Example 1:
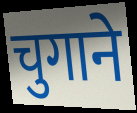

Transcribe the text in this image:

चुगाने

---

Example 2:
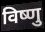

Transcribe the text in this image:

विष्णु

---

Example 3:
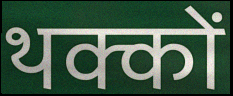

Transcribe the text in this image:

थक्कों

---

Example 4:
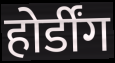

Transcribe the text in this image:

होर्डींग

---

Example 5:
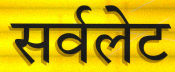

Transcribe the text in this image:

सर्वलेट